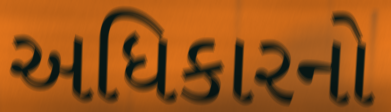
અધિકારનો